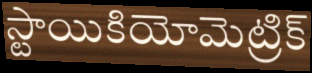
స్టాయికియోమెట్రిక్